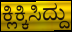
ಕ್ಲಿಕ್ಕಿಸಿದ್ದು